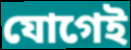
যোগেই